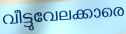
വീട്ടുവേലക്കാരെ